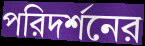
পরিদর্শনের